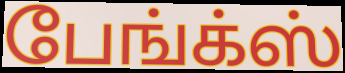
பேங்க்ஸ்